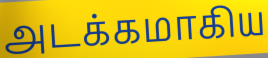
அடக்கமாகிய